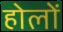
होलों